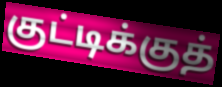
குட்டிக்குத்